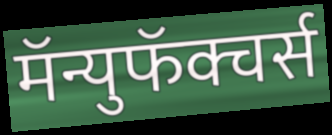
मॅन्युफॅक्चर्स